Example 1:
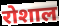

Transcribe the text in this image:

रोशाल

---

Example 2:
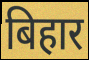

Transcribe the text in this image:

बिहार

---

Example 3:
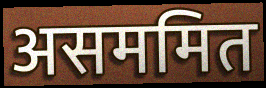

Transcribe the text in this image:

असममित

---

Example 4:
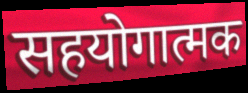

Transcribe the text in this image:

सहयोगात्मक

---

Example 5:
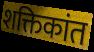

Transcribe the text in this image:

शक्तिकांत